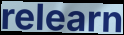
relearn